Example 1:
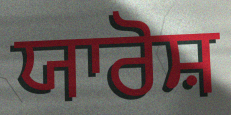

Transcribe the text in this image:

ਯਾਰੋਸ਼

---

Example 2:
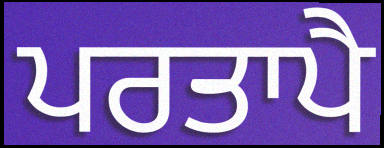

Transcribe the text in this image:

ਪਰਤਾਪੈ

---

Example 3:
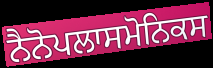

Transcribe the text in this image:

ਨੈਨੋਪਲਾਸਮੋਨਿਕਸ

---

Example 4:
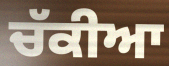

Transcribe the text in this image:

ਚੱਕੀਆ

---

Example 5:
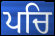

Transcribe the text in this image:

ਪਚਿ